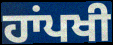
ਹਾਂਪਖੀ